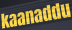
kaanaddu